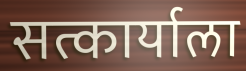
सत्कार्याला